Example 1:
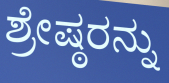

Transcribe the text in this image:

ಶ್ರೇಷ್ಠರನ್ನು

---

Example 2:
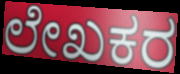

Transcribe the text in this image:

ಲೇಖಕರ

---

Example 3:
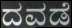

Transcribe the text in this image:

ದವಡೆ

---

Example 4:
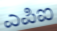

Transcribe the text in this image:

ಎಪಿಐ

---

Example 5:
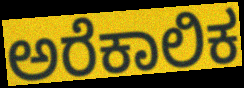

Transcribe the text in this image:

ಅರೆಕಾಲಿಕ